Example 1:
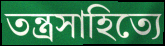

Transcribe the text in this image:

তন্ত্রসাহিত্যে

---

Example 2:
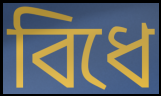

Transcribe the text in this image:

বিধে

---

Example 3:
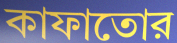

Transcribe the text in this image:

কাফাতোর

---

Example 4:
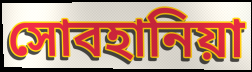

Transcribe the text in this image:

সোবহানিয়া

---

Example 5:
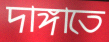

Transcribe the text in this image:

দাঙ্গাতে